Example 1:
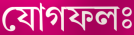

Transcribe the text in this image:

যোগফলঃ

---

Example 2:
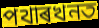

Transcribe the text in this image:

পথাৰখনত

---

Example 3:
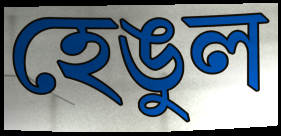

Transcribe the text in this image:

হেঙুল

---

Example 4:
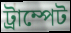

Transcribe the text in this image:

ট্ৰাম্পেট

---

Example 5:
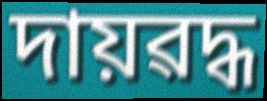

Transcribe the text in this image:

দায়ৱদ্ধ